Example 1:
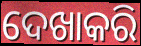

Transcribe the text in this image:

ଦେଖାକରି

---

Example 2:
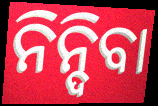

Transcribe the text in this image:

ନିନ୍ଦିବା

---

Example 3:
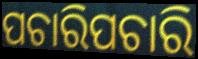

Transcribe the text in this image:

ପଚାରିପଚାରି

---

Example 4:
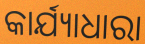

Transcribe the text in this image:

କାର୍ଯ୍ୟାଧାରା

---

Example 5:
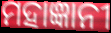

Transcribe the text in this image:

ମହାଜ୍ଞାନୀ